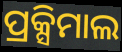
ପ୍ରକ୍ସିମାଲ